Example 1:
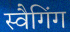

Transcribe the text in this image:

स्वैगिंग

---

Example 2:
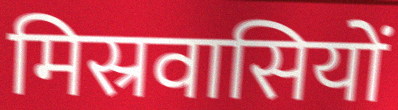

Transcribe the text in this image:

मिस्रवासियों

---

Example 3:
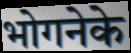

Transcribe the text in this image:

भोगनेके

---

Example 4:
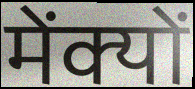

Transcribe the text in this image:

मेंक्यों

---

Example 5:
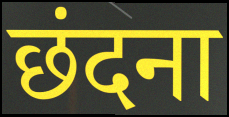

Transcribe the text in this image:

छंदना